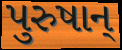
પુરુષાન્